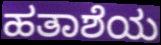
ಹತಾಶೆಯ